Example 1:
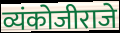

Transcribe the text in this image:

व्यंकोजीराजे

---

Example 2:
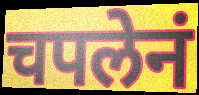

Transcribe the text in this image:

चपलेनं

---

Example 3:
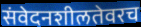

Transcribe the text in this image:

संवेदनशीलतेवरच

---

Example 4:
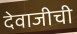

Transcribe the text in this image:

देवाजीची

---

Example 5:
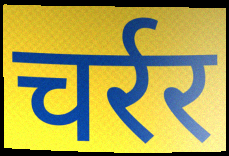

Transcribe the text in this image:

चर्रर